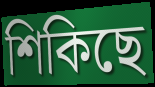
শিকিছে